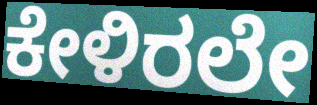
ಕೇಳಿರಲೇ